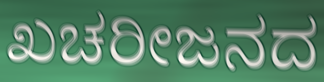
ಖಚರೀಜನದ